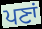
ਪਣਾਂ